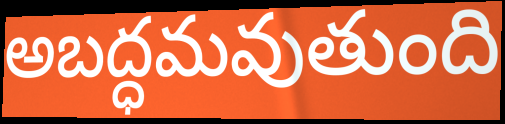
అబద్ధమవుతుంది